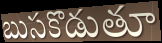
బుసకొడుతూ